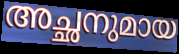
അച്ഛനുമായ